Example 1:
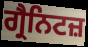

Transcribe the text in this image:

ਗ੍ਰੈਨਿਟਜ਼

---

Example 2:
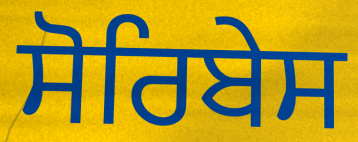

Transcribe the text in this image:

ਸੋਰਿਬੇਸ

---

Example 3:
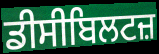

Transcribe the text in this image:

ਡੀਸੀਬਿਲਟਜ਼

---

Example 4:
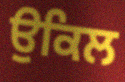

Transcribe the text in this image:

ਉਕਿਲ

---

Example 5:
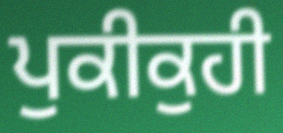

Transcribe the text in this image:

ਪੁਕੀਕੁਹੀ